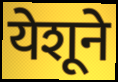
येशूने